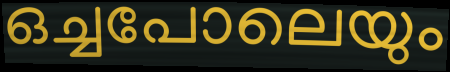
ഒച്ചപോലെയും